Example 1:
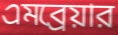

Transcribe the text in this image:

এমব্রেয়ার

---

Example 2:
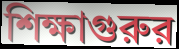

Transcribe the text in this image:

শিক্ষাগুরুর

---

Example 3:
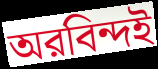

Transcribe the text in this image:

অরবিন্দই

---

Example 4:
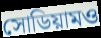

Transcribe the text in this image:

সোডিয়ামও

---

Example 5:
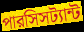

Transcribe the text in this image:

পারসিসট্যান্ট